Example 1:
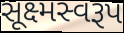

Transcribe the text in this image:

સૂક્ષ્મસ્વરૂપ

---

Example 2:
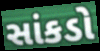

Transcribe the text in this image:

સાંકડો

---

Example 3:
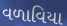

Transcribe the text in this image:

વળાવિયા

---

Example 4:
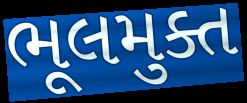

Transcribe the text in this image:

ભૂલમુક્ત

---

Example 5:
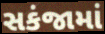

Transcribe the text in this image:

સકંજામાં